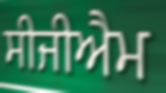
ਸੀਜੀਐਮ